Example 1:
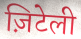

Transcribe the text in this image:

ज़िटेली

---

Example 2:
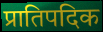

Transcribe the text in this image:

प्रातिपदिक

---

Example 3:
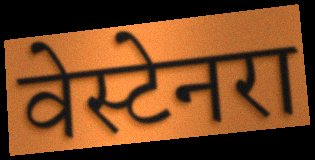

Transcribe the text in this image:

वेस्टेनरा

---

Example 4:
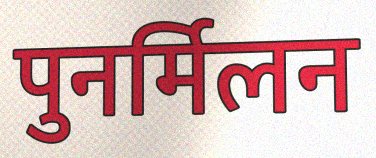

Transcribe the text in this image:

पुनर्मिलन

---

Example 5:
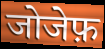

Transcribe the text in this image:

जोजेफ़